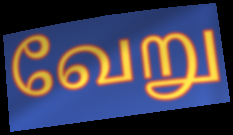
வேறு